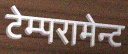
टेम्परामेन्ट